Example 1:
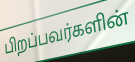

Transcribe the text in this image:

பிறப்பவர்களின்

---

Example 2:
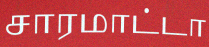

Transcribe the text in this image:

சாரமாட்டா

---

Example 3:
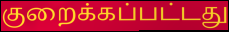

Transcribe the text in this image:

குறைக்கப்பட்டது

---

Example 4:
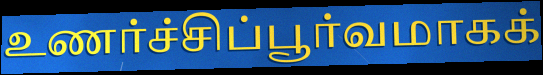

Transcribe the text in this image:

உணர்ச்சிப்பூர்வமாகக்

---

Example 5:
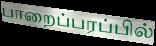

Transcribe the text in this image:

பாறைப்பரப்பில்